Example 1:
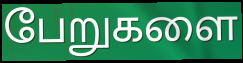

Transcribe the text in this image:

பேறுகளை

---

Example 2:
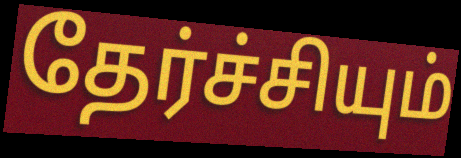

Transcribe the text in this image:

தேர்ச்சியும்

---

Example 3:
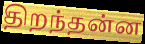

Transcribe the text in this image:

திறந்தன்ன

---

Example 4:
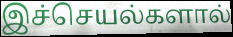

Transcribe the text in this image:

இச்செயல்களால்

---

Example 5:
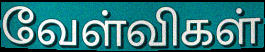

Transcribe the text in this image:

வேள்விகள்